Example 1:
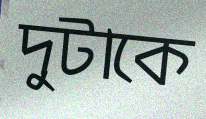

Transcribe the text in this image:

দুটাকে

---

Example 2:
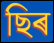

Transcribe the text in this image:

ছিৰ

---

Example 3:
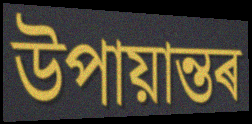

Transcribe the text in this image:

উপায়ান্তৰ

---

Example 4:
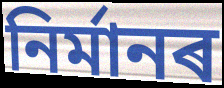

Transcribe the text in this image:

নিৰ্মানৰ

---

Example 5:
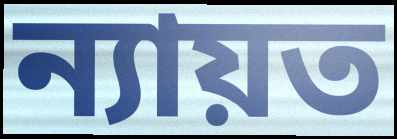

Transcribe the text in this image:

ন্যায়ত